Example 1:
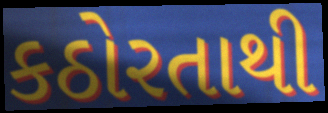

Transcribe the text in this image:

કઠોરતાથી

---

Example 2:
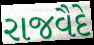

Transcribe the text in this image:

રાજવૈદે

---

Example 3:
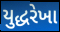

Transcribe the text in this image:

યુદ્ધરેખા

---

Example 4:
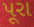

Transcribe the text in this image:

પૂરા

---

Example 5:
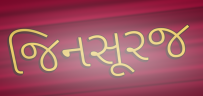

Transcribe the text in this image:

જિનસૂરજ